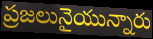
ప్రజలునైయున్నారు